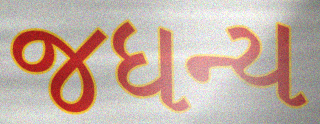
જધન્ય